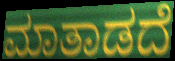
ಮಾತಾಡದೆ